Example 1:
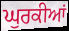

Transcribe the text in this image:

ਘੁਰਕੀਆਂ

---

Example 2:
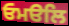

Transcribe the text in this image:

ਓਮੳਲਿ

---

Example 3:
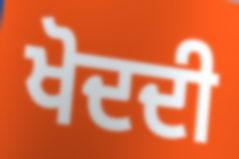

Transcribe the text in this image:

ਖੋਦਦੀ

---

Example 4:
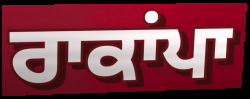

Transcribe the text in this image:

ਰਾਕਾਂਪਾ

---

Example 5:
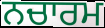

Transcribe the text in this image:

ਨਚਾਰਮ